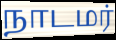
நாடமர்